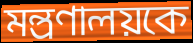
মন্ত্রণালয়কে